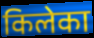
किलेका